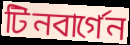
টিনবার্গেন